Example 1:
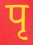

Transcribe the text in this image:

पृ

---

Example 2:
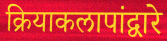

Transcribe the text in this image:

क्रियाकलापांद्वारे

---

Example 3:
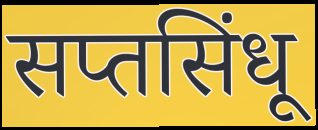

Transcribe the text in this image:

सप्तसिंधू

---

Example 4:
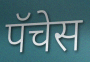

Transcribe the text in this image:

पॅचेस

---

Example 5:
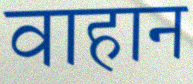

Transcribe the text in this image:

वाहान